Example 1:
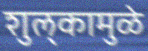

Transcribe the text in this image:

शुल्कामुळे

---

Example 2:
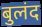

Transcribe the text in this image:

बुलंद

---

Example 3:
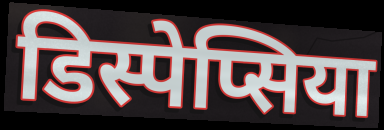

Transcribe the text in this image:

डिस्पेप्सिया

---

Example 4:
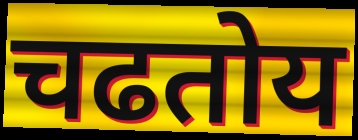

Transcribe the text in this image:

चढतोय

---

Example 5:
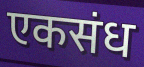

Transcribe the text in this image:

एकसंध